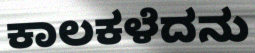
ಕಾಲಕಳೆದನು